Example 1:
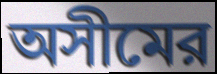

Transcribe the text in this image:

অসীমের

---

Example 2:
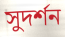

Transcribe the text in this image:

সুদর্শন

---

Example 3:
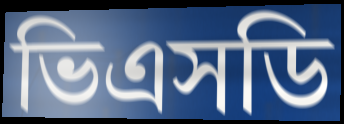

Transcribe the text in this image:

ভিএসডি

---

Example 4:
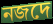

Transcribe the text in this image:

নজদে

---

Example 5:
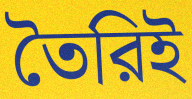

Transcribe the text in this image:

তৈরিই